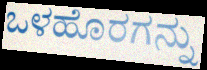
ಒಳಹೊರಗನ್ನು